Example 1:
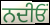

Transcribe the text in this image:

ਨਦੀਓਂ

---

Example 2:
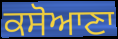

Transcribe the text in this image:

ਕਸੋਆਣਾ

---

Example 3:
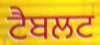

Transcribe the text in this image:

ਟੈਬਲਟ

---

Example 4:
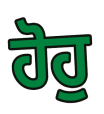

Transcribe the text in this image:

ਹੋਹੁ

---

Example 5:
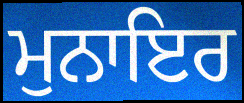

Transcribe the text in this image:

ਮੁਨਾਇਰ